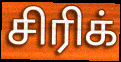
சிரிக்